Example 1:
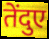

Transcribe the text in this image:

तेंदुए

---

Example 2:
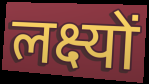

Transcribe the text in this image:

लक्ष्यों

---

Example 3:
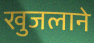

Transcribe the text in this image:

खुजलाने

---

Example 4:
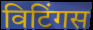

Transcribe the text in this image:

विटिंगस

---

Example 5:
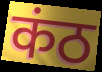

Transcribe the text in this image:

कंठ